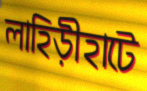
লাহিড়ীহাটে